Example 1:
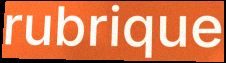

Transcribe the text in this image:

rubrique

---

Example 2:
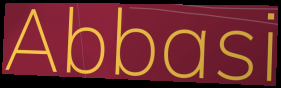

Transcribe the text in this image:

Abbasi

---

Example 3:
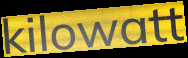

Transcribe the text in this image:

kilowatt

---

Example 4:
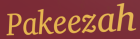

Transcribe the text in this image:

Pakeezah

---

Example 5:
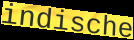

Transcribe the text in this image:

indische